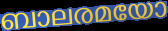
ബാലരമയോ